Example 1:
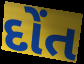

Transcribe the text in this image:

દોંત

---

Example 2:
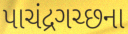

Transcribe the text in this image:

પાચંદ્રગચ્છના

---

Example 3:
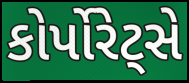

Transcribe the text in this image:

કોર્પોરેટ્સે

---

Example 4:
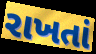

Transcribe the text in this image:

રાખતાં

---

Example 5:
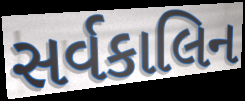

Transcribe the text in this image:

સર્વકાલિન